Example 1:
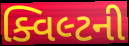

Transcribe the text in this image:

ક્વિલ્ટની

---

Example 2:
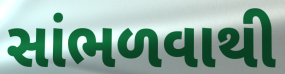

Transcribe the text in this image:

સાંભળવાથી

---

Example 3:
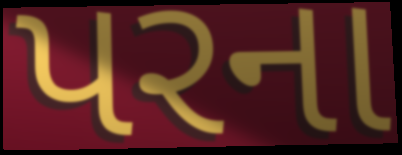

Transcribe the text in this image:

પરના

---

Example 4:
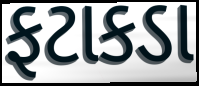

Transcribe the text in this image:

ફટાકડા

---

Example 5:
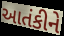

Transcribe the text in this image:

આતંકીને